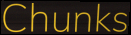
Chunks